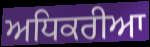
ਅਧਿਕਰੀਆ